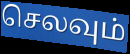
செலவும்